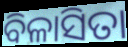
ବିଳାସିତା